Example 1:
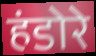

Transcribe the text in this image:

हंडोरे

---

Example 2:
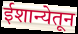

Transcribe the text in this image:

ईशान्येतून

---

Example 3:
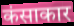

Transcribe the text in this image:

कंसाकार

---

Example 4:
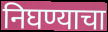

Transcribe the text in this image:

निघण्याचा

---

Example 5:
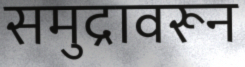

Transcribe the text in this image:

समुद्रावरून